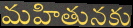
మహితునకు